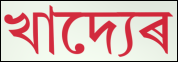
খাদ্যেৰ